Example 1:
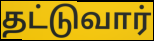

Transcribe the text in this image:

தட்டுவார்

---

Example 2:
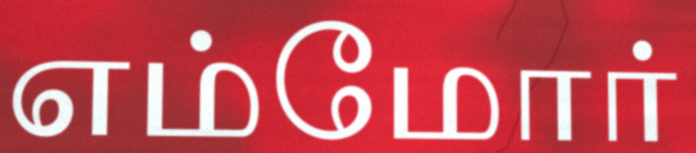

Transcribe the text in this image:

எம்மோர்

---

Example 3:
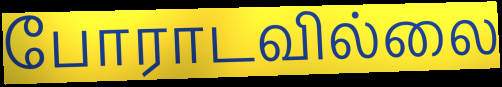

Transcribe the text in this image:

போராடவில்லை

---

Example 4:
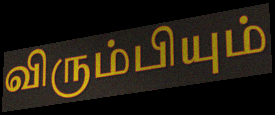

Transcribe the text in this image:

விரும்பியும்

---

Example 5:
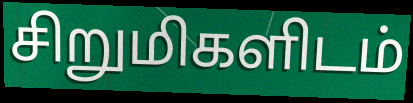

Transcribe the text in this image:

சிறுமிகளிடம்